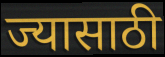
ज्यासाठी